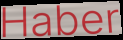
Haber